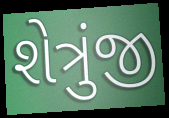
શેત્રુંજી